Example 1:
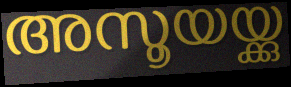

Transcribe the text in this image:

അസൂയയ്ക്കു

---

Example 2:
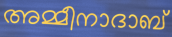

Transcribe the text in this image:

അമ്മീനാദാബ്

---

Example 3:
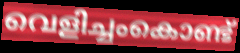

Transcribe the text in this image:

വെളിച്ചംകൊണ്ട്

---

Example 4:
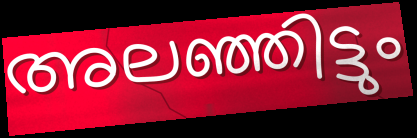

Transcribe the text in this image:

അലഞ്ഞിട്ടും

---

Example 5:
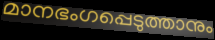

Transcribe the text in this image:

മാനഭംഗപ്പെടുത്താനും